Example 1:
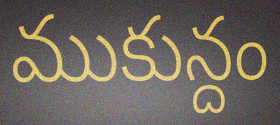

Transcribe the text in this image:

ముకున్దం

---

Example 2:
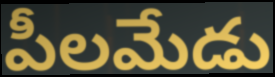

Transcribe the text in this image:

పీలమేడు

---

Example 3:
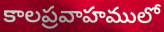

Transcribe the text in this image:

కాలప్రవాహములో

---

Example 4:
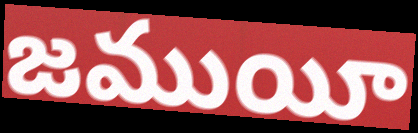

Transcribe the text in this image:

జముయీ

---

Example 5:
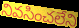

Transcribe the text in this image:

నివసించలేని